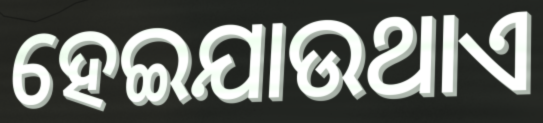
ହେଇଯାଉଥାଏ